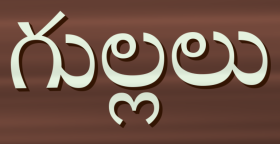
గుల్లలు